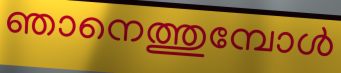
ഞാനെത്തുമ്പോൾ